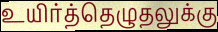
உயிர்த்தெழுதலுக்கு